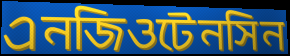
এনজিওটেনসিন